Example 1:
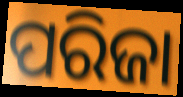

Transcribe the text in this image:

ପରିଜା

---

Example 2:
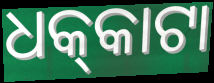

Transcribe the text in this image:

ଧକ୍‌କାଟା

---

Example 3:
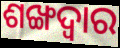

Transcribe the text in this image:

ଶଙ୍ଖଦ୍ୱାର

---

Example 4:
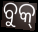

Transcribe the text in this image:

ବୁକ୍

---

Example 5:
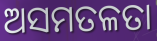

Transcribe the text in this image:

ଅସମତଳତା